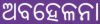
ଅବହେଳନା